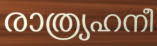
രാത്ര്യഹനീ